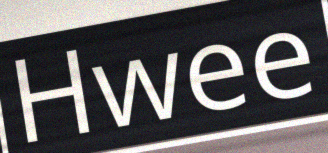
Hwee